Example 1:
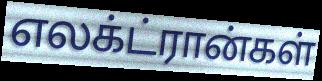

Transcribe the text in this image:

எலக்ட்ரான்கள்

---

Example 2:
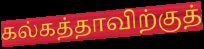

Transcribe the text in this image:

கல்கத்தாவிற்குத்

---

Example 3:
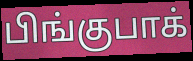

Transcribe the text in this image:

பிங்குபாக்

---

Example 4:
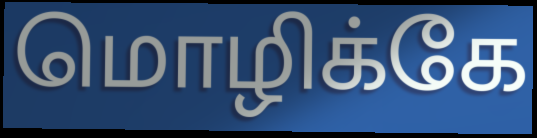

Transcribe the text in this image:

மொழிக்கே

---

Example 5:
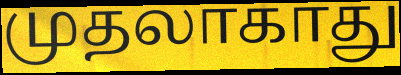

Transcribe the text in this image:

முதலாகாது